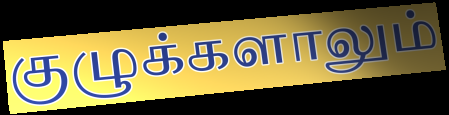
குழுக்களாலும்